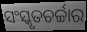
ସଂସ୍କୃତଚର୍ଚ୍ଚାର